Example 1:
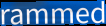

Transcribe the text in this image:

rammed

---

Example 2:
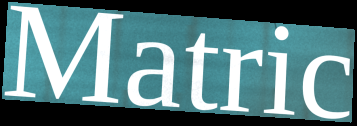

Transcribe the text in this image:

Matric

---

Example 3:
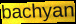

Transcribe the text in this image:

bachyan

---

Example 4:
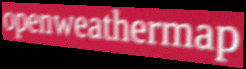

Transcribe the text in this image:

openweathermap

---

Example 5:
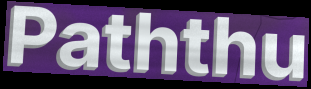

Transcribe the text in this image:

Paththu